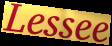
Lessee